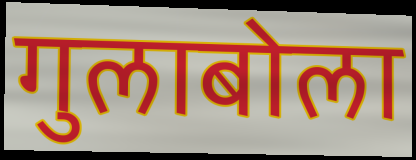
गुलाबोला